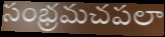
సంభ్రమచపలా